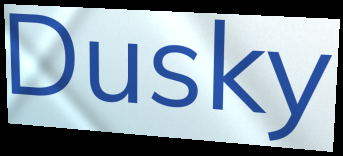
Dusky